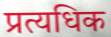
प्रत्यधिक